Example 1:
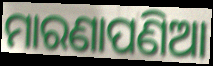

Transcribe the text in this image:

ମାରଣାପଣିଆ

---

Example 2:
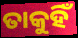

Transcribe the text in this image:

ତାକୁହିଁ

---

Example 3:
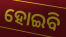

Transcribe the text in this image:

ହୋଇିବ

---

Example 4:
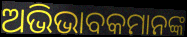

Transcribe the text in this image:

ଅଭିଭାବକମାନଙ୍କ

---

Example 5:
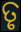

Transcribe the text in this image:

ତୃ